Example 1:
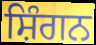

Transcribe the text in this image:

ਸ਼ਿੰਗਨ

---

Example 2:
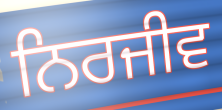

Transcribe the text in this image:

ਨਿਰਜੀਵ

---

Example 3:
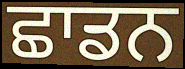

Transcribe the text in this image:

ਛਾਡਨ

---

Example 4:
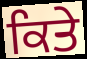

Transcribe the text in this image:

ਕਿਤੇ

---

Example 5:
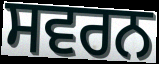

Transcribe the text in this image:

ਸਵਰਨ